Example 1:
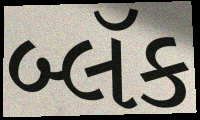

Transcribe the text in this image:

બ્લૅક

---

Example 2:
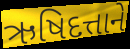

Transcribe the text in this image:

ઋષિદત્તાને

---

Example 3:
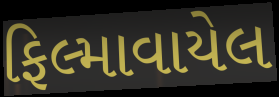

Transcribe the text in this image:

ફિલ્માવાયેલ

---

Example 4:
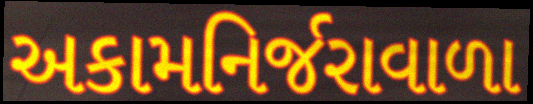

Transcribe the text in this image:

અકામનિર્જરાવાળા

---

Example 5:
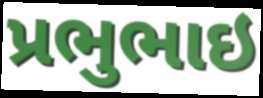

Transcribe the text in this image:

પ્રભુભાઇ